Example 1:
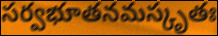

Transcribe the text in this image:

సర్వభూతనమస్కృతః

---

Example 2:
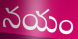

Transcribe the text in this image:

నయం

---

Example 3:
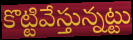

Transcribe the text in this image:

కొట్టివేస్తున్నట్టు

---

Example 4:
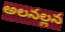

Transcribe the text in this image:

అలనల్లన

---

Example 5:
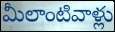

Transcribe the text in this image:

మీలాంటివాళ్లు